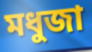
মধুজা